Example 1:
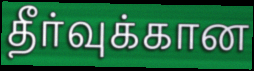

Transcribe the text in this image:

தீர்வுக்கான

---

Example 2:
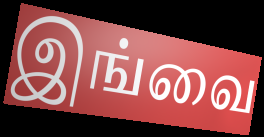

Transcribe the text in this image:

இங்வை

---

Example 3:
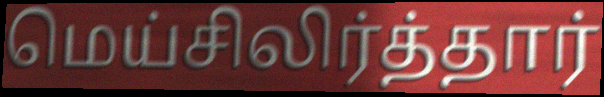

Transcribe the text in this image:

மெய்சிலிர்த்தார்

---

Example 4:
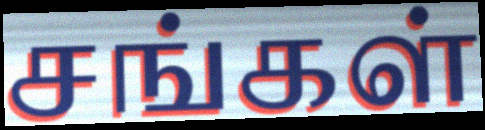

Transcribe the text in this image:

சங்கள்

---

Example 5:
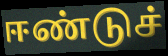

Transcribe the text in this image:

ஈண்டுச்